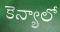
కెన్యాలో